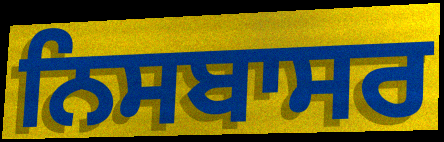
ਨਿਸਬਾਸਰ